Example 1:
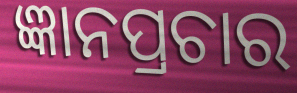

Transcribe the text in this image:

ଜ୍ଞାନପ୍ରଚାର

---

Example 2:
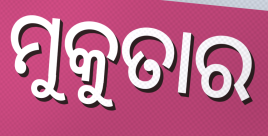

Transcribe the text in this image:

ମୁକୁତାର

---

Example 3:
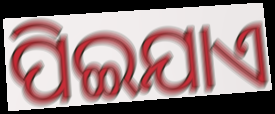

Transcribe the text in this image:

ପିଇଯାଏ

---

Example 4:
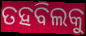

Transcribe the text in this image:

ତହବିଲକୁ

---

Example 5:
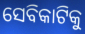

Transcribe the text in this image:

ସେବିକାଟିକୁ